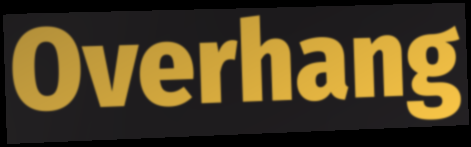
Overhang